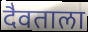
दैवताला